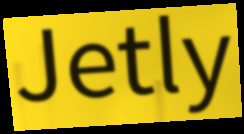
Jetly